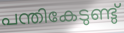
പന്തികേടുണ്ടു്